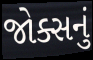
જોક્સનું